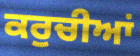
ਕਰੁਚੀਆਂ